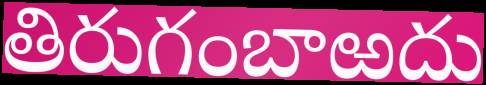
తిరుగంబాఱదు